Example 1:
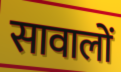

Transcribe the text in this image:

सावालों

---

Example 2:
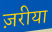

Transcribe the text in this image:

ज़रीया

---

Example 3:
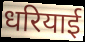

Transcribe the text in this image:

धरियाई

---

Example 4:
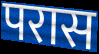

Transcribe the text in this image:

परास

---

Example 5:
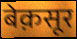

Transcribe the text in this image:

बेक़सूर